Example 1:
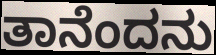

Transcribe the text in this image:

ತಾನೆಂದನು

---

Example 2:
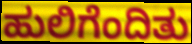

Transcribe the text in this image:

ಹುಲಿಗೆಂದಿತು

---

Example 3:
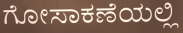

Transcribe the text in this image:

ಗೋಸಾಕಣೆಯಲ್ಲಿ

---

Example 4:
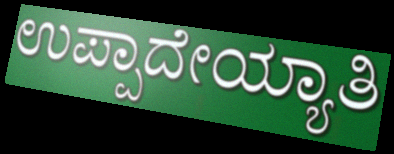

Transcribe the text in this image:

ಉಪ್ಪಾದೇಯ್ಯಾತಿ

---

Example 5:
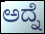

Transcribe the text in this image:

ಅದ್ನೆ